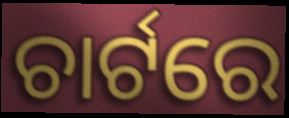
ଚାର୍ଟରେ